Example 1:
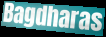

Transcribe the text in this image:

Bagdharas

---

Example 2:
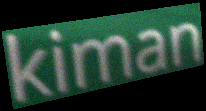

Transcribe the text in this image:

kiman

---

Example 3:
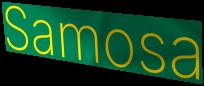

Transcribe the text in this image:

Samosa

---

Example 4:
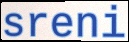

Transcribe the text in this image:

sreni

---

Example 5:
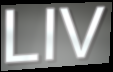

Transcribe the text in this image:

LIV